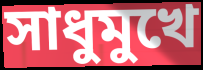
সাধুমুখে